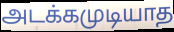
அடக்கமுடியாத